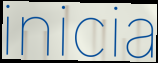
inicia